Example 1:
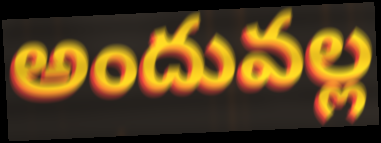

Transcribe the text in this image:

అందువల్ల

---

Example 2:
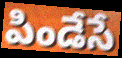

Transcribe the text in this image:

పిండేసే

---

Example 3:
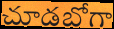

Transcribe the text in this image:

చూడబోగా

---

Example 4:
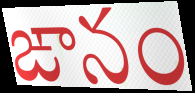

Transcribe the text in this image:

ఙానం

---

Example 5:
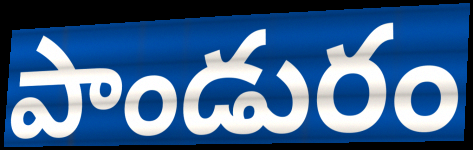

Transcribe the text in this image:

పాండురం